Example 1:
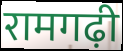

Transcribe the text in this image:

रामगढ़ी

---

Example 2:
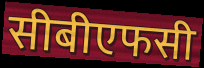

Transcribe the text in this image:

सीबीएफसी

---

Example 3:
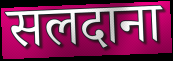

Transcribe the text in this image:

सलदाना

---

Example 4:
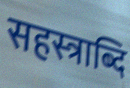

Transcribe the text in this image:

सहस्त्राब्दि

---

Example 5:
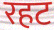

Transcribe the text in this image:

रहट